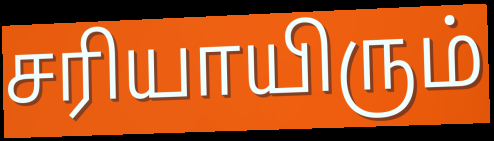
சரியாயிரும்